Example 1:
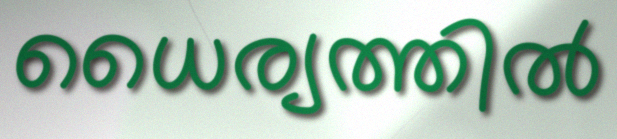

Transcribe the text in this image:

ധൈര്യത്തിൽ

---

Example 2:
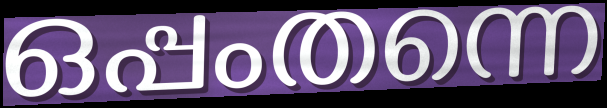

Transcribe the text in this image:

ഒപ്പംതന്നെ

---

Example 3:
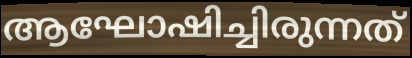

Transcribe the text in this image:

ആഘോഷിച്ചിരുന്നത്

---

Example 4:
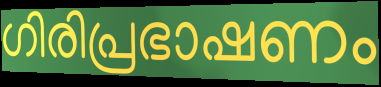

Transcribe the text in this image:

ഗിരിപ്രഭാഷണം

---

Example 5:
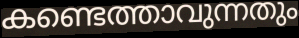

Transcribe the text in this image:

കണ്ടെത്താവുന്നതും